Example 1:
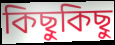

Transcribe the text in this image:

কিছুকিছু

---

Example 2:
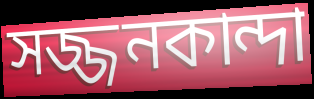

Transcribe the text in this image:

সজ্জনকান্দা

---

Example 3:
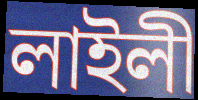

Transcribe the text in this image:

লাইলী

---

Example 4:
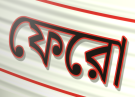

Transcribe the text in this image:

ফেরো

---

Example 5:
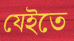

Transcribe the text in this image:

যেইতে